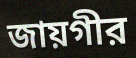
জায়গীর